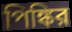
পিঙ্কির